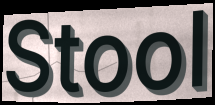
Stool